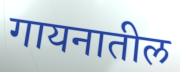
गायनातील